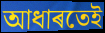
আধাৰতেই